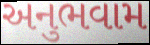
અનુભવામ